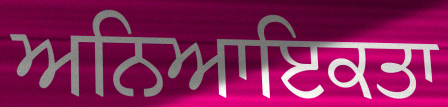
ਅਨਿਆਇਕਤਾ